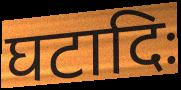
घटादिः